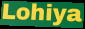
Lohiya